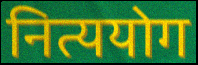
नित्ययोग